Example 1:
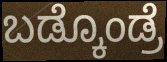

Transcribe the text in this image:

ಬಡ್ಕೊಂಡ್ರೆ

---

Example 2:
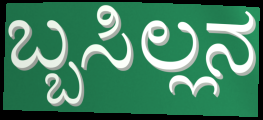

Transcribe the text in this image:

ಬ್ಬಸಿಲ್ಲನ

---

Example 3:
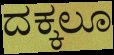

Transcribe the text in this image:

ದಕ್ಕಲೂ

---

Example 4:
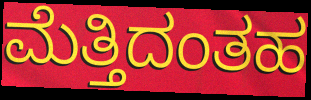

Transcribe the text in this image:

ಮೆತ್ತಿದಂತಹ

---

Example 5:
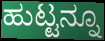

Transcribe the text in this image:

ಹುಟ್ಟನ್ನೂ